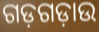
ଗଡ଼ଗଡ଼ାଉ